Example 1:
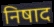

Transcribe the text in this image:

निषाद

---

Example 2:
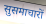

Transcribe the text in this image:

सुसमाचारों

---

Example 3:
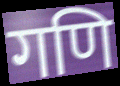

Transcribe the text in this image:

गणि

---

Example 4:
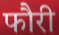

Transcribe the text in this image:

फौरी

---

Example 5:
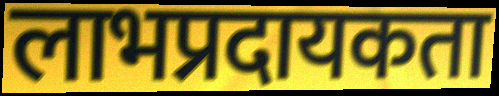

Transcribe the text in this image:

लाभप्रदायकता